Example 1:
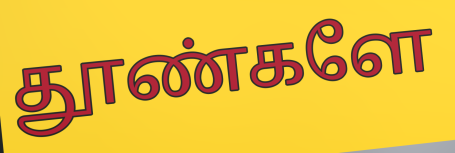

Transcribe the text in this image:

தூண்களே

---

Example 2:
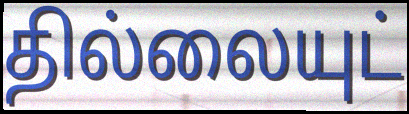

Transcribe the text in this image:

தில்லையுட்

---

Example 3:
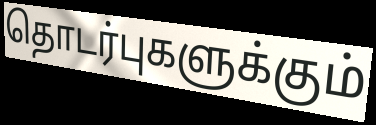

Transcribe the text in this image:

தொடர்புகளுக்கும்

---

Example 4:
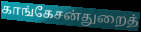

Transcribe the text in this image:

காங்கேசன்துறைத்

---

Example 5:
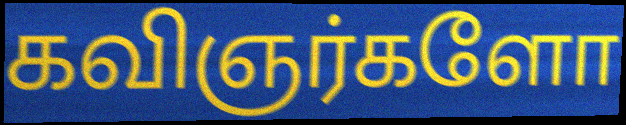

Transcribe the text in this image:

கவிஞர்களோ